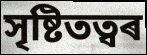
সৃষ্টিতত্বৰ